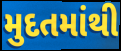
મુદતમાંથી